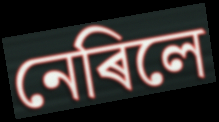
নেৰিলে